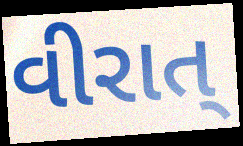
વીરાત્